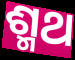
ଶ୍ମଥ